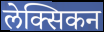
लेक्सिकन